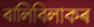
বালিবিলাকৰ